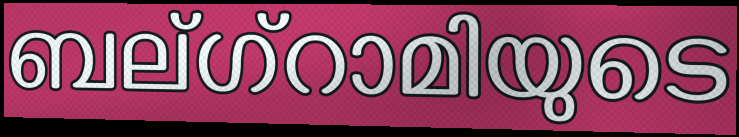
ബല്ഗ്റാമിയുടെ